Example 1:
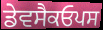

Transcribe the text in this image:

ਡੇਵਸੈਕਓਪਸ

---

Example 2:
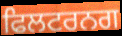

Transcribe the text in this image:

ਫਿਲਟਰਨਗ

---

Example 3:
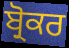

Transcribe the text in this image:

ਬ੍ਰੋਕਰ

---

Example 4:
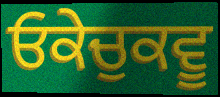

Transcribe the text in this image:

ਓਕੇਚੁਕਵੂ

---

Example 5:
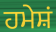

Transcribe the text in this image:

ਹਮੇਸ਼ਂ